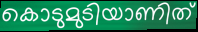
കൊടുമുടിയാണിത്